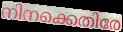
നിനക്കെതിരേ